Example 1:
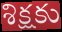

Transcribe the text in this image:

శిక్షకు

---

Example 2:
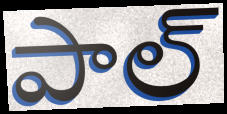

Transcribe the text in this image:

పాల్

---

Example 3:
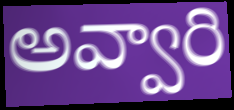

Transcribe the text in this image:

అవ్వారి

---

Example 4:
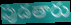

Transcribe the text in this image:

పుడతారు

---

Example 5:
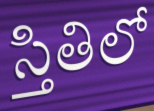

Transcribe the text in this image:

స్తితిలో